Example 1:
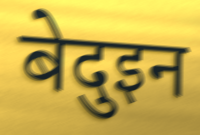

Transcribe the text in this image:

बेदुइन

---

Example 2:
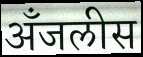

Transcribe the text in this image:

अँजलीस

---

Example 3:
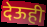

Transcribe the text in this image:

देऊही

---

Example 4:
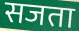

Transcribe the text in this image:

सजता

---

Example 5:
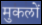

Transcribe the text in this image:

मुकलों